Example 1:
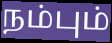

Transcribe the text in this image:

நம்பும்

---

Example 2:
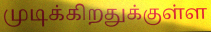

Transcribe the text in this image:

முடிக்கிறதுக்குள்ள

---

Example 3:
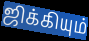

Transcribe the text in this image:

ஜிக்கியும்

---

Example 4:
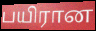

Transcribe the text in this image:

பயிரான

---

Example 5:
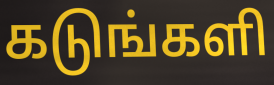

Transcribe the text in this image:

கடுங்களி